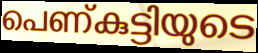
പെണ്കുട്ടിയുടെ